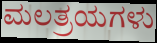
ಮಲತ್ರಯಗಳು